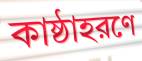
কাষ্ঠাহরণে